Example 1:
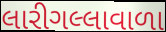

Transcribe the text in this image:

લારીગલ્લાવાળા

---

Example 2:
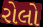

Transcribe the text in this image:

રોલો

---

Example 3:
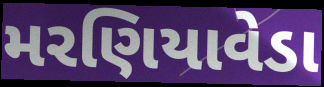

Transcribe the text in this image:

મરણિયાવેડા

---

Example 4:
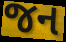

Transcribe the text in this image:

જન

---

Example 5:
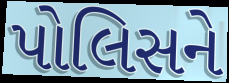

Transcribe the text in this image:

પોલિસને